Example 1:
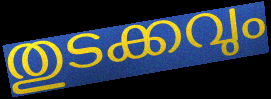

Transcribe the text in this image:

തുടക്കവും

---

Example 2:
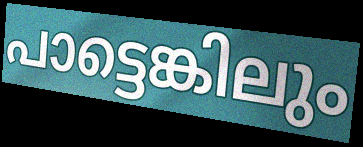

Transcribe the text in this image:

പാട്ടെങ്കിലും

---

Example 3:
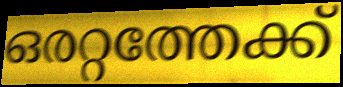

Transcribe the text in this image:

ഒരറ്റത്തേക്ക്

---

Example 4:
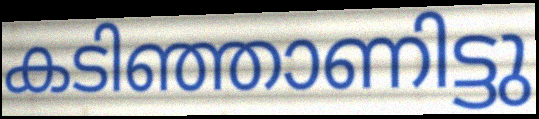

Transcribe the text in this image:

കടിഞ്ഞാണിട്ടു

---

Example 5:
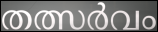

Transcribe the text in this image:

തത്സർവം